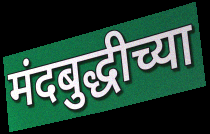
मंदबुद्धीच्या